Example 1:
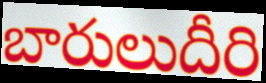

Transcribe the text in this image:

బారులుదీరి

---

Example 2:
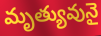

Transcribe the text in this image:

మృత్యువునై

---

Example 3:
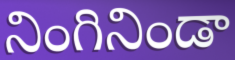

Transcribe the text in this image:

నింగినిండా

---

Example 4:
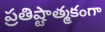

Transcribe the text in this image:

ప్రతిష్టాత్మకంగా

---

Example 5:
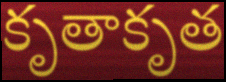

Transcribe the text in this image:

కృతాకృత